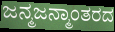
ಜನ್ಮಜನ್ಮಾಂತರದ